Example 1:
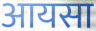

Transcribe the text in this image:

आयसा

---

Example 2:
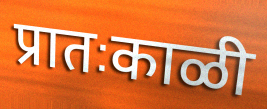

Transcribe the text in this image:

प्रातःकाळी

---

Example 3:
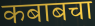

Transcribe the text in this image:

कबाबचा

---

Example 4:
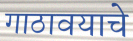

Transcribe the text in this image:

गाठावयाचे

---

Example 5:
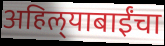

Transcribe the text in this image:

अहिल्याबाईंचा